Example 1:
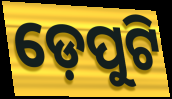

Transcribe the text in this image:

ଡ଼େପୁଟି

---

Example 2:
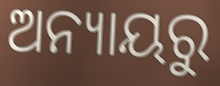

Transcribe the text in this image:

ଅନ୍ୟାୟରୁ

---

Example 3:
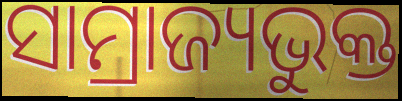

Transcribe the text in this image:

ସାମ୍ରାଜ୍ୟଭୁକ୍ତ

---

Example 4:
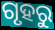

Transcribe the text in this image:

ଗୃହରୁ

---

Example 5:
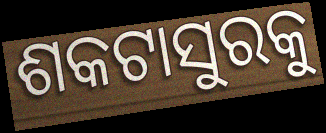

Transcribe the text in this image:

ଶକଟାସୁରକୁ